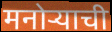
मनोऱ्याची